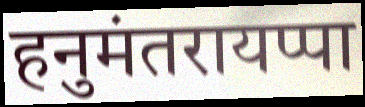
हनुमंतरायप्पा